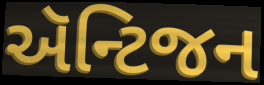
ઍન્ટિજન